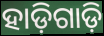
ହାଡ଼ିଗାଡ଼ି